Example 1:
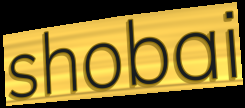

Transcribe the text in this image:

shobai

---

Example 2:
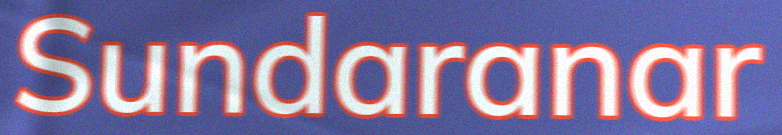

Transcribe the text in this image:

Sundaranar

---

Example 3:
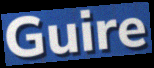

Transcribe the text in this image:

Guire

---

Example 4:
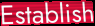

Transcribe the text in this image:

Establish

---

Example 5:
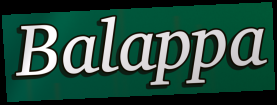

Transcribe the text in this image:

Balappa